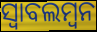
ସ୍ୱାବଲମ୍ବନ